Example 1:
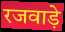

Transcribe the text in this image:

रजवाड़े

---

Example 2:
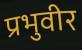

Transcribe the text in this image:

प्रभुवीर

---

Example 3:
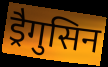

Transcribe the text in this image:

ड्रैगुसिन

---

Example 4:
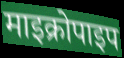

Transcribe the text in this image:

माइक्रोपाइप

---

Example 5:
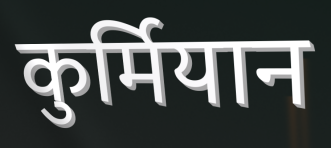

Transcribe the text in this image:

कुर्मियान